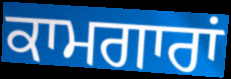
ਕਾਮਗਾਰਾਂ